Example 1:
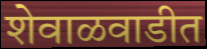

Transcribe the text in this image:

शेवाळवाडीत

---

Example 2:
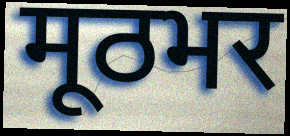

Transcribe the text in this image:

मूठभर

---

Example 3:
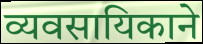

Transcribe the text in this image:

व्यवसायिकाने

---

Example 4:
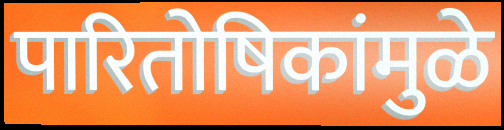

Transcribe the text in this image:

पारितोषिकांमुळे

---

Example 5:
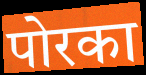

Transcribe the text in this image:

पोरका